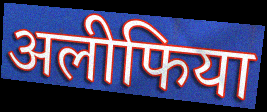
अलीफिया